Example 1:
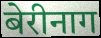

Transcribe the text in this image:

बेरीनाग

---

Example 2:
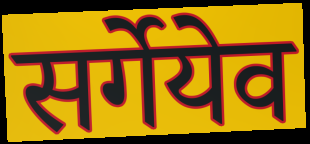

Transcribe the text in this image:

सर्गेयेव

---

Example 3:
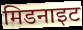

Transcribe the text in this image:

मिडनाइट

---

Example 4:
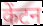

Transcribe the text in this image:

केंटन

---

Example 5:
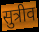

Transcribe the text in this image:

सुत्रीव